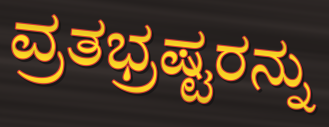
ವ್ರತಭ್ರಷ್ಟರನ್ನು